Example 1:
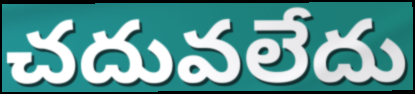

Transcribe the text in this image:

చదువలేదు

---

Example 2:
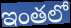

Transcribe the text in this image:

ఇంతలో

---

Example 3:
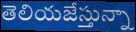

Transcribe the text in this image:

తెలియజేస్తున్నా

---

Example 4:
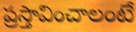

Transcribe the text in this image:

ప్రస్తావించాలంటే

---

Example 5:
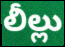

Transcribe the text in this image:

లీల్లు